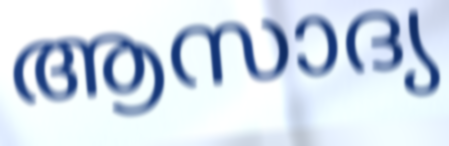
ആസാദ്യ